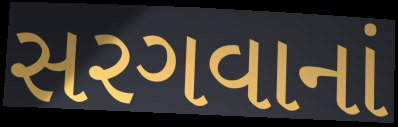
સરગવાનાં